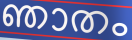
ഞാതം